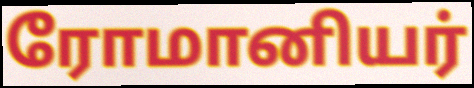
ரோமானியர்